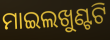
ମାଇଲଖୁଣ୍ଟଟି